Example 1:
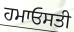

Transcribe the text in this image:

ਹਮਾਓਸਤੀ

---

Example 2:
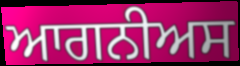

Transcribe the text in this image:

ਆਗਨੀਅਸ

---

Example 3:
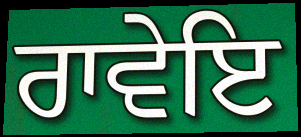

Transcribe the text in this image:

ਰਾਵੇਇ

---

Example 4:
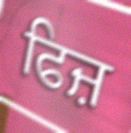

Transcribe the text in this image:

ਫਿਜ਼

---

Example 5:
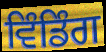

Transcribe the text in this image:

ਵਿੰਡਿੰਗ